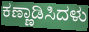
ಕಣ್ಣಾಡಿಸಿದಳು